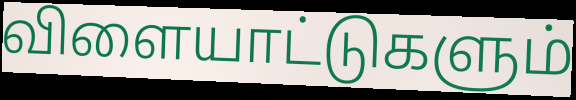
விளையாட்டுகளும்